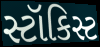
સ્ટૉકિસ્ટ